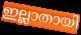
ഇല്ലാതായി